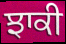
ਝਾਕੀ